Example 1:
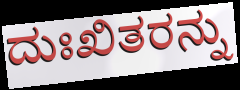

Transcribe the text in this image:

ದುಃಖಿತರನ್ನು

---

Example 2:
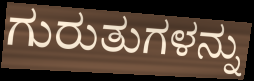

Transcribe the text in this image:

ಗುರುತುಗಳನ್ನು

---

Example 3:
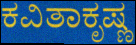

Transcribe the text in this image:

ಕವಿತಾಕೃಷ್ಣ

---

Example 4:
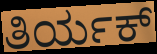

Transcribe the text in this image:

ತಿರ್ಯಕ್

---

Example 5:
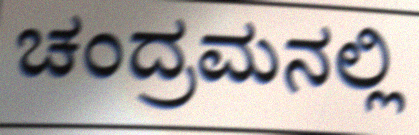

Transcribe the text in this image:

ಚಂದ್ರಮನಲ್ಲಿ